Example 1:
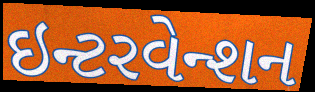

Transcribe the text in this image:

ઇન્ટરવેન્શન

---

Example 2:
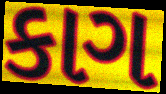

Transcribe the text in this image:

કાગ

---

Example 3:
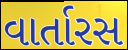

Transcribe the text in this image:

વાર્તારસ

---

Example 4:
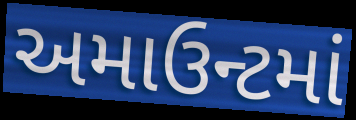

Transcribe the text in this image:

અમાઉન્ટમાં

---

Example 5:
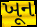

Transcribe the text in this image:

ખૂન